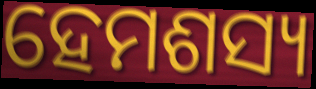
ହେମଶସ୍ୟ